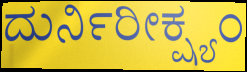
ದುರ್ನಿರೀಕ್ಷ್ಯಂ